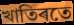
খাতিৰতে